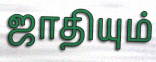
ஜாதியும்